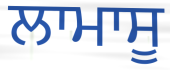
ਲਾਮਾਸੂ